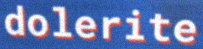
dolerite